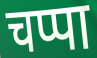
चप्पा